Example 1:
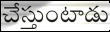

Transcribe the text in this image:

చేస్తుంటాడు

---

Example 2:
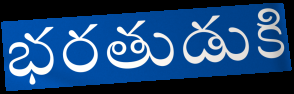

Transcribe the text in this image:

భరతుడుకి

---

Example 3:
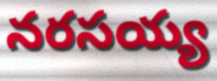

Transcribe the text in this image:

నరసయ్య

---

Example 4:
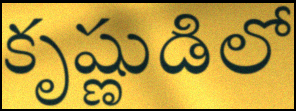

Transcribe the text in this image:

కృష్ణుడిలో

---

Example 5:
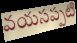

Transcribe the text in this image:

వయసప్పటి